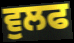
ਵੁਲਫ